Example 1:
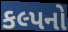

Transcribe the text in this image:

કલ્પનો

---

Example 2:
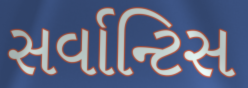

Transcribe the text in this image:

સર્વાન્ટિસ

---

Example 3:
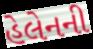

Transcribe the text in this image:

હેલેનની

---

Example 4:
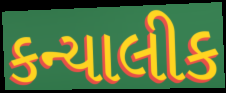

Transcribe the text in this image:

કન્યાલીક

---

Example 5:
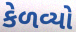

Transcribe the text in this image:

કેળવ્યો